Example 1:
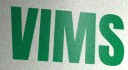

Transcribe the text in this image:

VIMS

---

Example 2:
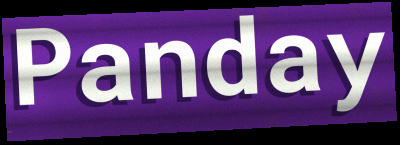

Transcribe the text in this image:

Panday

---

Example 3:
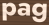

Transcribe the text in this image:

pag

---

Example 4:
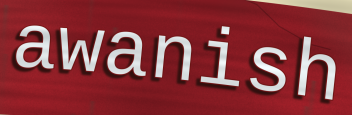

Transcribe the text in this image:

awanish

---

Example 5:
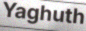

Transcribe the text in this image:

Yaghuth